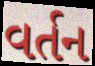
વર્તન